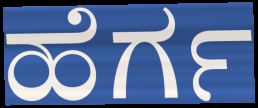
ಹೆರ್ಗ